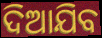
ଦିଆଯିବ